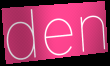
den